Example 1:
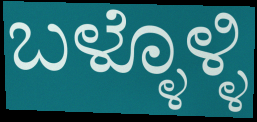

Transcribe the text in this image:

ಬಳ್ಳೊಳ್ಳಿ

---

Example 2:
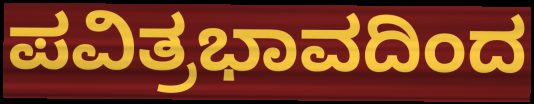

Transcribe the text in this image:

ಪವಿತ್ರಭಾವದಿಂದ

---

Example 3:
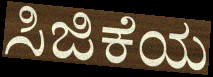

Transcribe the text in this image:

ಸಿಜಿಕೆಯ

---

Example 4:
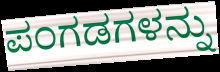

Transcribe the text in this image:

ಪಂಗಡಗಳನ್ನು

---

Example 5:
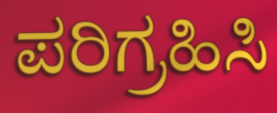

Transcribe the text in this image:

ಪರಿಗ್ರಹಿಸಿ